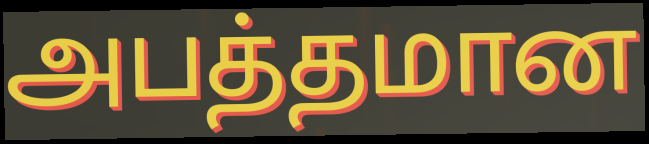
அபத்தமான